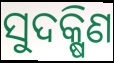
ସୁଦକ୍ଷିଣ